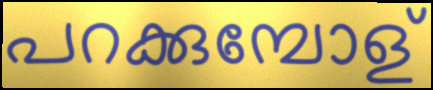
പറക്കുമ്പോള്